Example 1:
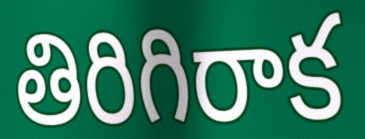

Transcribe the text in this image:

తిరిగిరాక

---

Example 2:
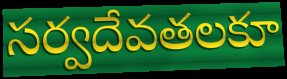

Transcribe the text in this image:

సర్వదేవతలకూ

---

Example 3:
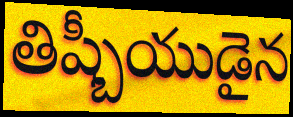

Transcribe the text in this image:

తిష్బీయుడైన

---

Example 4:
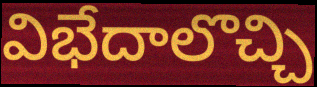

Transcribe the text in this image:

విభేదాలొచ్చి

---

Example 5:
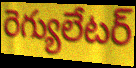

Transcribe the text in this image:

రెగ్యులేటర్